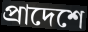
প্রাদেশে